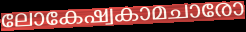
ലോകേഷ്വകാമചാരോ